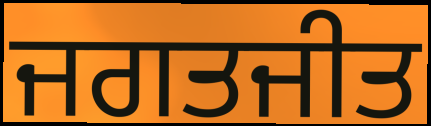
ਜਗਤਜੀਤ